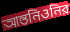
আন্তনিওনির